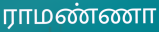
ராமண்ணா